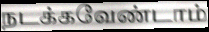
நடக்கவேண்டாம்